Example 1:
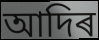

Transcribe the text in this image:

আদিৰ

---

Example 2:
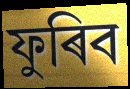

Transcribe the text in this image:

ফুৰিব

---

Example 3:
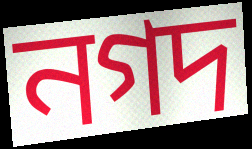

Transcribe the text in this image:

নগদ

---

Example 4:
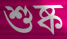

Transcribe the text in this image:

শুষ্ক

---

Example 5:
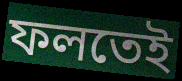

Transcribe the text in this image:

ফলতেই